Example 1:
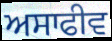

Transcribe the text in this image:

ਅਸਾਫੀਵ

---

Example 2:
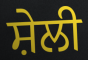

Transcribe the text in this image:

ਸ਼ੇਲੀ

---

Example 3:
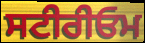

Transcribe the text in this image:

ਸਟੀਰੀਓਮ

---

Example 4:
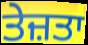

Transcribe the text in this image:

ਤੇਜ਼ਤਾ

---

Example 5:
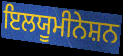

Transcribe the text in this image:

ਇਲਯੂਮੀਨੇਸ਼ਨ